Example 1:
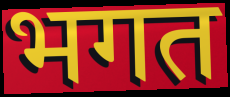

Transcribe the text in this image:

भगत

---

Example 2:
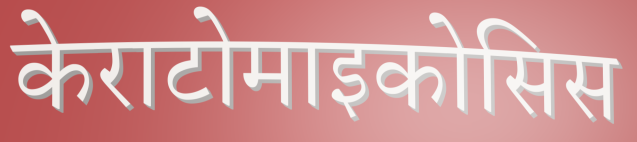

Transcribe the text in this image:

केराटोमाइकोसिस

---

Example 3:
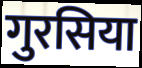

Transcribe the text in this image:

गुरसिया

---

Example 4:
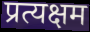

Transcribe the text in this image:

प्रत्यक्षम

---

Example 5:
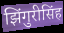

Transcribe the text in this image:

झिंगुरीसिंह